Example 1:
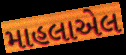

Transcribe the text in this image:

માહલાએલ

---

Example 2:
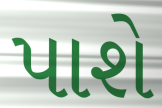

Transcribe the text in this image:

પાશે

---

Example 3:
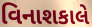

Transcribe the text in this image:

વિનાશકાલે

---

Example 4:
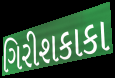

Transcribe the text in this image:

ગિરીશકાકા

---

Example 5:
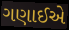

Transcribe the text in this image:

ગણાઈએ